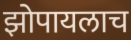
झोपायलाच